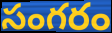
సంగరం